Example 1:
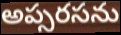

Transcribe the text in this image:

అప్సరసను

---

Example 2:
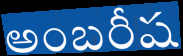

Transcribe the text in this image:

అంబరీష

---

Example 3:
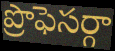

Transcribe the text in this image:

ప్రొఫెసర్గా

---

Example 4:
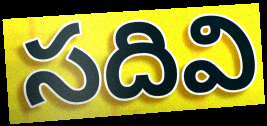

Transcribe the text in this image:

సదివి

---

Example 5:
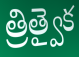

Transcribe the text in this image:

త్రిత్వైక